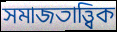
সমাজতাত্ত্বিক